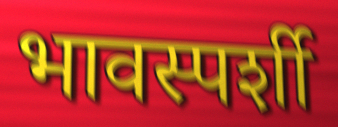
भावस्पर्शी